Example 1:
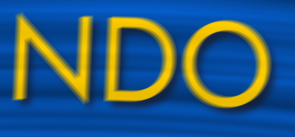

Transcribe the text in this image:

NDO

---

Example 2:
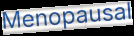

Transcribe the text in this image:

Menopausal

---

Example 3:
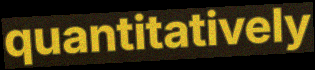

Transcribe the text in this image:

quantitatively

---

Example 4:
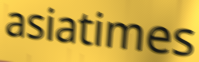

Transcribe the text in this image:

asiatimes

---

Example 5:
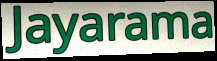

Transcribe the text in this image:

Jayarama